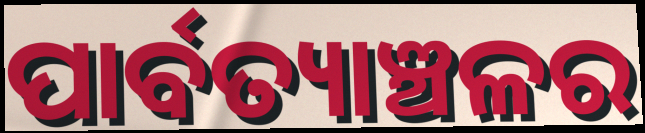
ପାର୍ବତ୍ୟାଞ୍ଚଳର